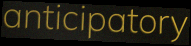
anticipatory